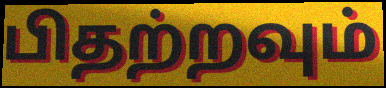
பிதற்றவும்